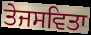
ਤੇਜਸਵਿਤਾ